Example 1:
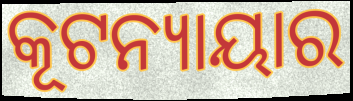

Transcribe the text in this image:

କୂଟନ୍ୟାୟାର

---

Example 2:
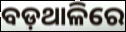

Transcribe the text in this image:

ବଡ଼ଥାଳିରେ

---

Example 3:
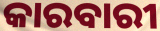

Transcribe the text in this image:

କାରବାରୀ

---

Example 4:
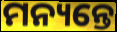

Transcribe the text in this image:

ମନ୍ୟନ୍ତେ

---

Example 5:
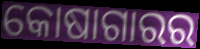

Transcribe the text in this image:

କୋଷାଗାରର